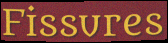
Fissures